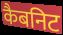
कैबनिट